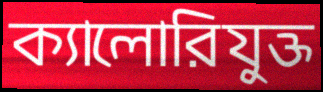
ক্যালোরিযুক্ত